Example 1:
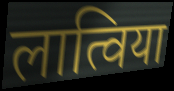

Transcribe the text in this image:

लात्विया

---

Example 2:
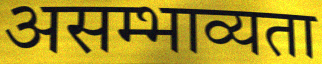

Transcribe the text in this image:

असम्भाव्यता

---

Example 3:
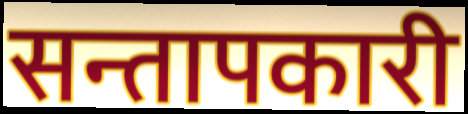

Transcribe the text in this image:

सन्तापकारी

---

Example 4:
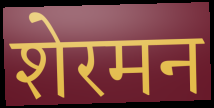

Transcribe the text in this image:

शेरमन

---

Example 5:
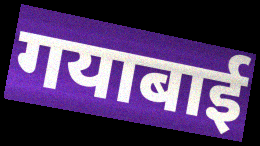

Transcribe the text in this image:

गयाबाई